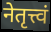
नेतृत्त्वं